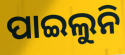
ପାଇଲୁନି